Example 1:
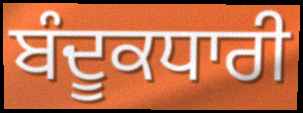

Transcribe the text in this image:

ਬੰਦੂਕਧਾਰੀ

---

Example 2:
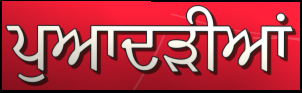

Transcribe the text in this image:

ਪੁਆਦੜੀਆਂ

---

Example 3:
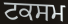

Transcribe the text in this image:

ਟਕਸਮ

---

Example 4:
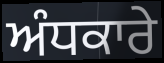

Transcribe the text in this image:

ਅੰਧਕਾਰੇ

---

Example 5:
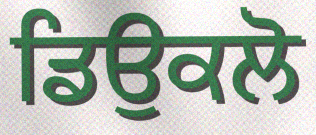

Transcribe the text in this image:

ਡਿਉਕਲੋ